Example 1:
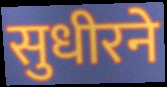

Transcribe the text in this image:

सुधीरने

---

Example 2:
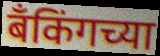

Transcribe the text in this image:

बँकिंगच्या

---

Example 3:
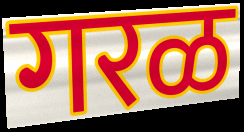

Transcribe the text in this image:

गरळ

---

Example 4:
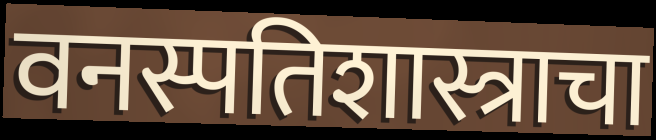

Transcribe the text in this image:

वनस्पतिशास्त्राचा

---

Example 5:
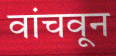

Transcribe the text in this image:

वांचवून